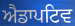
ਐਡਾਪਟਿਵ